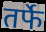
तर्फे